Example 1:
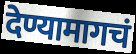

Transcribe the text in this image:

देण्यामागचं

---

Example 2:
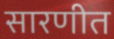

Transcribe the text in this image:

सारणीत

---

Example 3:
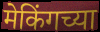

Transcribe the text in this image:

मेकिंगच्या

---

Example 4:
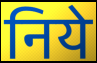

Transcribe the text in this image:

निये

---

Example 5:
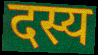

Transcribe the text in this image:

दस्य